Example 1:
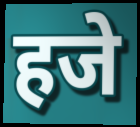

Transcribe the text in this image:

हजे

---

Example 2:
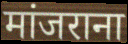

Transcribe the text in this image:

मांजराना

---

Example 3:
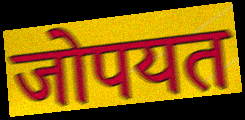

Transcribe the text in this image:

जोपयत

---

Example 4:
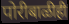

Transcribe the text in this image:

पोरीबाळीही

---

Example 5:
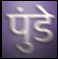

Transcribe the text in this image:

पुंडे